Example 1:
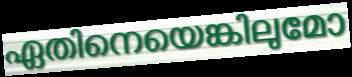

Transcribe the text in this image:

ഏതിനെയെങ്കിലുമോ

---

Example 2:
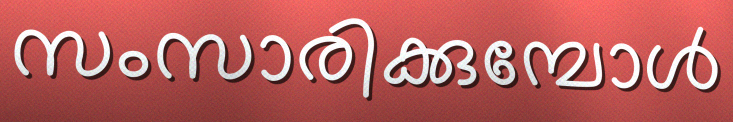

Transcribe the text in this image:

സംസാരിക്കുമ്പോൾ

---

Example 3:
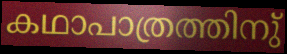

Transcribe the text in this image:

കഥാപാത്രത്തിനു്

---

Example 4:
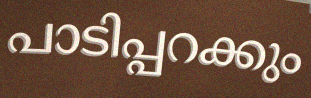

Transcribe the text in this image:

പാടിപ്പറക്കും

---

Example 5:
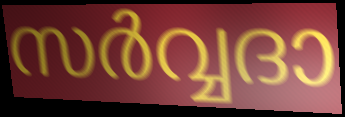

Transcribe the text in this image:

സർവ്വദാ